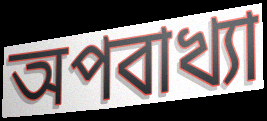
অপবাখ্যা